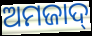
ଅମଜାଦ୍